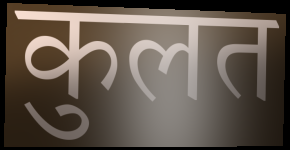
कुलत